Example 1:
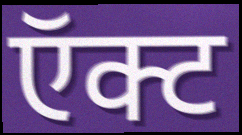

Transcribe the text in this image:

ऍक्ट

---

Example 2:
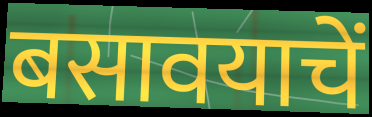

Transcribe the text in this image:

बसावयाचें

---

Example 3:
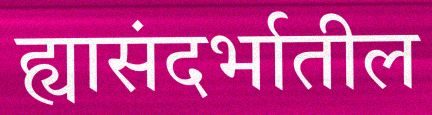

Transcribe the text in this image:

ह्यासंदर्भातील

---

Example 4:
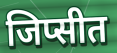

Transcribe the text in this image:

जिप्सीत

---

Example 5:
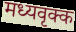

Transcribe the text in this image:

मध्यवृक्क